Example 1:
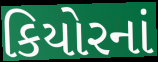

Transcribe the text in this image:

કિયોરનાં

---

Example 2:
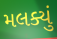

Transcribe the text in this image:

મલક્યું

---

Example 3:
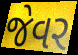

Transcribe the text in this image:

જેવર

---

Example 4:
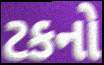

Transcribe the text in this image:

ટકનો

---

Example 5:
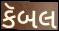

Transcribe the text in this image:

કૅબલ